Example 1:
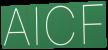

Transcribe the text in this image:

AICF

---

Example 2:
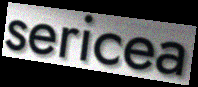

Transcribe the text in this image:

sericea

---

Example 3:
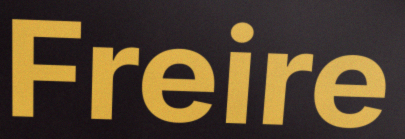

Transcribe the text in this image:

Freire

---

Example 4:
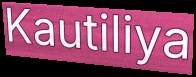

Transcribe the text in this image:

Kautiliya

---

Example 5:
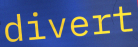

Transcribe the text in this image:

divert